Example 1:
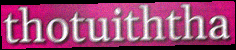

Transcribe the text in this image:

thotuiththa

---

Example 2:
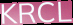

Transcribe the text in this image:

KRCL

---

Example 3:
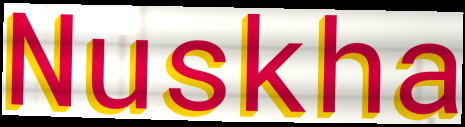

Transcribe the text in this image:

Nuskha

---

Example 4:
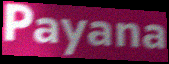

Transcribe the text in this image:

Payana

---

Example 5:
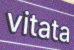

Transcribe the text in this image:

vitata